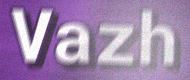
Vazh